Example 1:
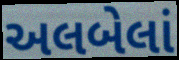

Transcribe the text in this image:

અલબેલાં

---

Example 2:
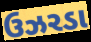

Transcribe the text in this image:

ઉઝરડા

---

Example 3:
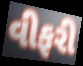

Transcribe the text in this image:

વીફરી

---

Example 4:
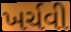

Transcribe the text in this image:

ખર્ચવી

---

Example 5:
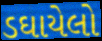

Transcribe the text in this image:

ડઘાયેલો